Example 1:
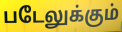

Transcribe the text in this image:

படேலுக்கும்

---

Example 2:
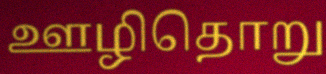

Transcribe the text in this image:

ஊழிதொறு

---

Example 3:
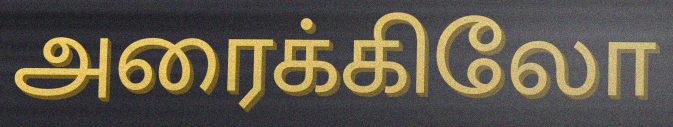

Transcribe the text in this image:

அரைக்கிலோ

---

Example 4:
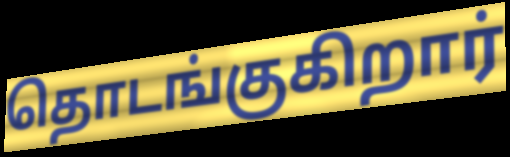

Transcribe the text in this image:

தொடங்குகிறார்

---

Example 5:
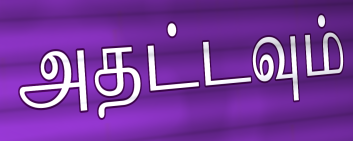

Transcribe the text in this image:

அதட்டவும்